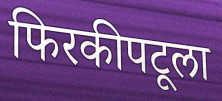
फिरकीपटूला